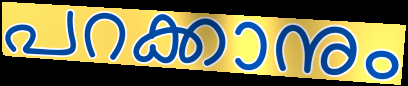
പറക്കാനും